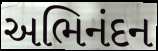
અભિનંદન